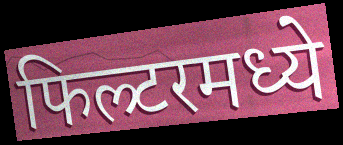
फिल्टरमध्ये